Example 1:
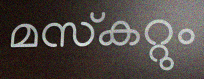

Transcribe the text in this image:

മസ്‌കറ്റും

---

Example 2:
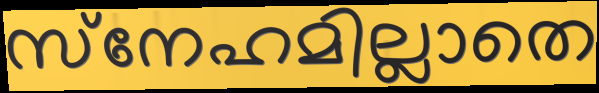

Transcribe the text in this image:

സ്‌നേഹമില്ലാതെ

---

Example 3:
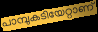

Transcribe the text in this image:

പാമ്പുകടിയേറ്റാണ്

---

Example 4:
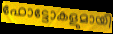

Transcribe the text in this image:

ഫോട്ടോകളുമായി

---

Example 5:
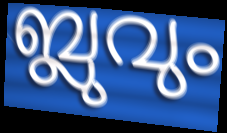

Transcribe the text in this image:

ബ്ലുവും